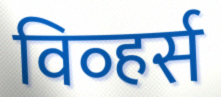
विव्हर्स